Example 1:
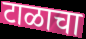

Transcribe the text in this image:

टाळाचा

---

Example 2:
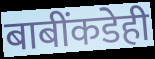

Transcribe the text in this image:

बाबींकडेही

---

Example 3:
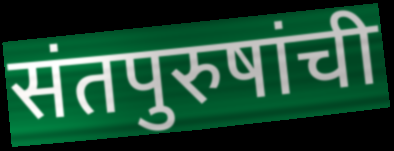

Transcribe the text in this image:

संतपुरुषांची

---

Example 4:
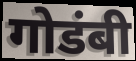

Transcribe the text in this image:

गोडंबी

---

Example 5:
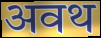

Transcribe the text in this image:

अवथ